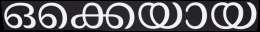
ഒക്കെയായ